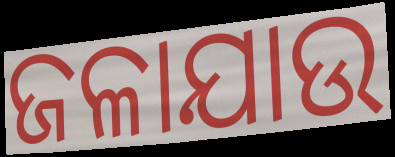
ଜଳାଯାଉ